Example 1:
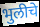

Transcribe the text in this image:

भुलीचे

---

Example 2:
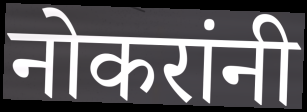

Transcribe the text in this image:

नोकरांनी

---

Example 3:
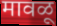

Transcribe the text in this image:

मावळू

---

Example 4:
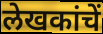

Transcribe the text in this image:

लेखकांचें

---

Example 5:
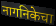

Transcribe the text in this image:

नागनिकेचा